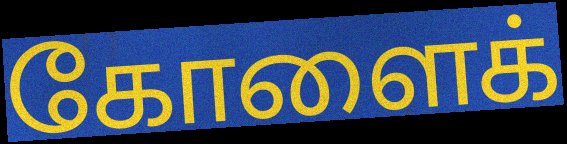
கோளைக்